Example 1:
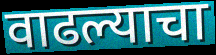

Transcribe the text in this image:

वाढल्याचा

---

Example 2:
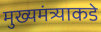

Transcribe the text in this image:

मुख्यमंत्र्याकडे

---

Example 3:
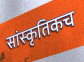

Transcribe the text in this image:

सांस्कृतिकच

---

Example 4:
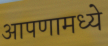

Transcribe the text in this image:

आपणामध्ये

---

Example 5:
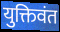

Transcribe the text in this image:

युक्तिवंत